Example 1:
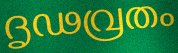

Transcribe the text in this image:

ദൃഢവ്രതം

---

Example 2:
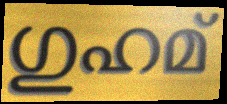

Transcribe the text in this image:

ഗുഹമ്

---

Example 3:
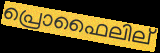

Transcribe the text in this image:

പ്രൊഫൈലില്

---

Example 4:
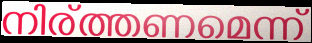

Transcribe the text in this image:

നിര്ത്തണമെന്ന്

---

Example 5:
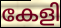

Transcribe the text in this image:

കേളി